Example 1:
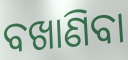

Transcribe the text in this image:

ବଖାଣିବା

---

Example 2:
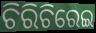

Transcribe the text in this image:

ଚିରିଚିରେଇ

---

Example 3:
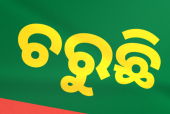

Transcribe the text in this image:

ଚରୁଛି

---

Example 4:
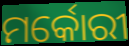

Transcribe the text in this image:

ମର୍କୋରୀ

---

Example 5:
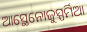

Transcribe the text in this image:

ଆସ୍ଥେନୋଜୁସ୍ପର୍ମିଆ